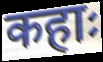
कहाः